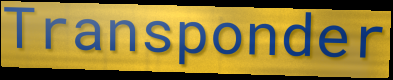
Transponder